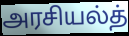
அரசியல்த்